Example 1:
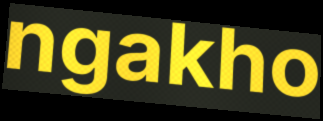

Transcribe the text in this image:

ngakho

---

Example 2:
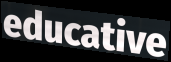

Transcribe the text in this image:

educative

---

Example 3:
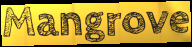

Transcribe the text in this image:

Mangrove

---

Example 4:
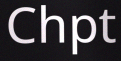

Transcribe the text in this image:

Chpt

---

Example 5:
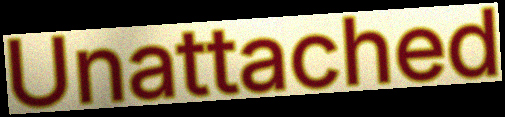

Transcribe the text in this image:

Unattached